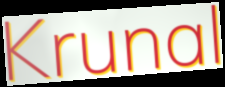
Krunal